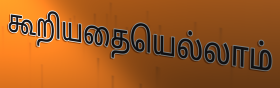
கூறியதையெல்லாம்